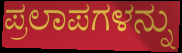
ಪ್ರಲಾಪಗಳನ್ನು